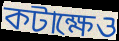
কটাক্ষেও